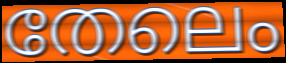
തേലെം